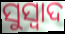
ସୁସ୍ୱାଦ